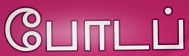
போடப்